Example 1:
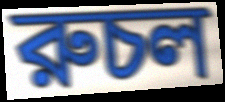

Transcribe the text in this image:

রুচল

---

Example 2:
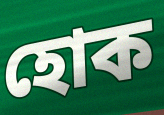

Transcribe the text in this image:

হোক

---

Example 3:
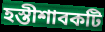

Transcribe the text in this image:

হস্তীশাবকটি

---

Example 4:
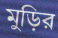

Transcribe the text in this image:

মুড়ির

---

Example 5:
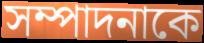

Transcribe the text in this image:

সম্পাদনাকে